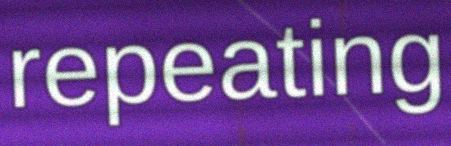
repeating